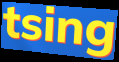
tsing